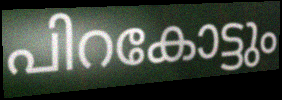
പിറകോട്ടും